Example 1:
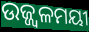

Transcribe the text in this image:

ଉଜ୍ଜ୍ୱଳମୟୀ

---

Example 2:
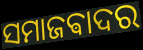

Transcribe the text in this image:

ସମାଜଵାଦର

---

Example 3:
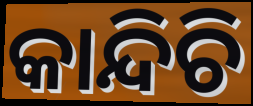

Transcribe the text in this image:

କାନ୍ଦିଚି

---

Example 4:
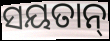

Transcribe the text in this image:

ସୟତାନ୍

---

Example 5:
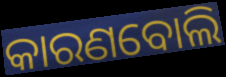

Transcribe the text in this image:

କାରଣବୋଲି